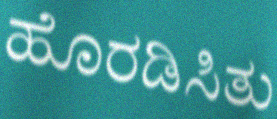
ಹೊರಡಿಸಿತು